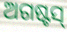
ଅଗଷ୍ଟସ୍